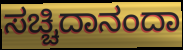
ಸಚ್ಚಿದಾನಂದಾ